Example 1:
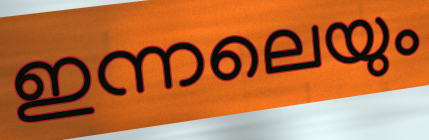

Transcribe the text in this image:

ഇന്നലെയും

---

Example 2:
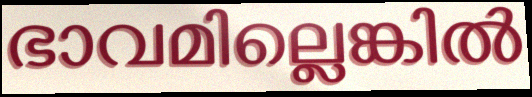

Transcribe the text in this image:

ഭാവമില്ലെങ്കിൽ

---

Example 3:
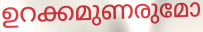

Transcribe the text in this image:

ഉറക്കമുണരുമോ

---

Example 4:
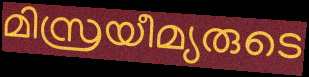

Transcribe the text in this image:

മിസ്രയീമ്യരുടെ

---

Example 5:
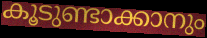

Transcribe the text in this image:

കൂടുണ്ടാക്കാനും